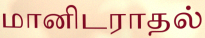
மானிடராதல்